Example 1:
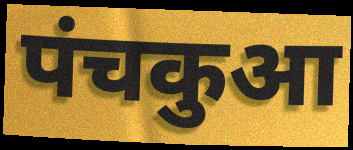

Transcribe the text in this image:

पंचकुआ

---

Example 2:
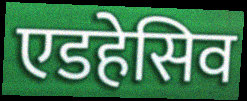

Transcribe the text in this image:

एडहेसिव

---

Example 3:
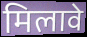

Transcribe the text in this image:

मिलावे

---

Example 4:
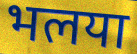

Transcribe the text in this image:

भलया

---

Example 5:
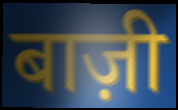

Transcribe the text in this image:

बाज़ी